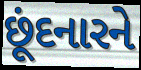
છૂંદનારને